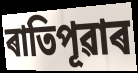
ৰাতিপূৱাৰ